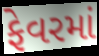
ફેવરમાં